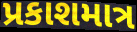
પ્રકાશમાત્ર